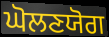
ਘੋਲਣਯੋਗ